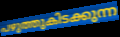
പഴുത്തുകിടക്കുന്ന